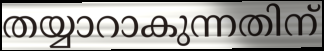
തയ്യാറാകുന്നതിന്